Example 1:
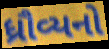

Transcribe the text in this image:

ધ્રૌવ્યનો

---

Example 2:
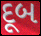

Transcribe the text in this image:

દૂબ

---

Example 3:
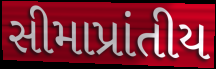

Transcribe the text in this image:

સીમાપ્રાંતીય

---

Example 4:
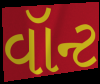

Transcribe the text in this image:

વૉન્ટ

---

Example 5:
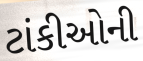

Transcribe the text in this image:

ટાંકીઓની